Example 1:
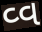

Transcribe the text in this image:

વ્વ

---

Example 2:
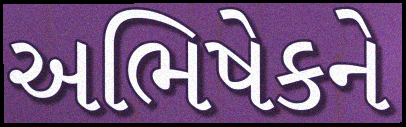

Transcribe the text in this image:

અભિષેકને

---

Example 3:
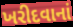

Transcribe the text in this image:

ખરીદવાનાં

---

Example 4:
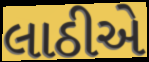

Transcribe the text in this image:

લાઠીએ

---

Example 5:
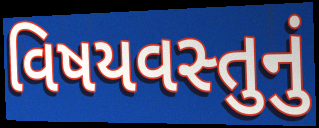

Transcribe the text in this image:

વિષયવસ્તુનું